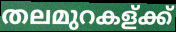
തലമുറകള്ക്ക്